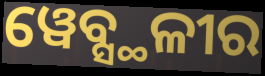
ୱେବ୍ସ୍ଥଳୀର